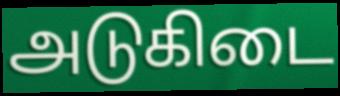
அடுகிடை